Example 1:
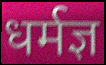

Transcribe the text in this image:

धर्मज्ञ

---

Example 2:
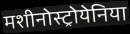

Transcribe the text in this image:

मशीनोस्ट्रोयेनिया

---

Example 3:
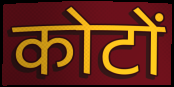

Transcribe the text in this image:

कोटों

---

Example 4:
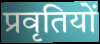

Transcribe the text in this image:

प्रवृतियों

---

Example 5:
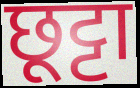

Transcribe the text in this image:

छूट्टा